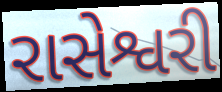
રાસેશ્વરી